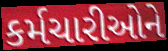
કર્મચારીઓને